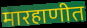
मारहाणीत